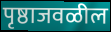
पृष्ठाजवळील